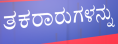
ತಕರಾರುಗಳನ್ನು